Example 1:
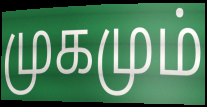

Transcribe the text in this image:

முகமும்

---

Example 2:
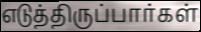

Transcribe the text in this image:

எடுத்திருப்பார்கள்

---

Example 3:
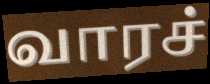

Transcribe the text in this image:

வாரச்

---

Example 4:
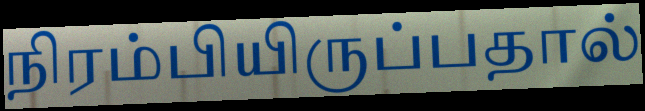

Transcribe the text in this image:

நிரம்பியிருப்பதால்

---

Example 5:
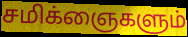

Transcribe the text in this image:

சமிக்ஞைகளும்